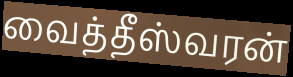
வைத்தீஸ்வரன்